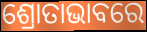
ଶ୍ରୋତାଭାବରେ